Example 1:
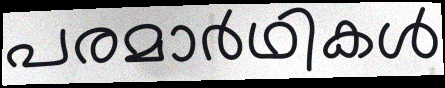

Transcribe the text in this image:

പരമാർഥികൾ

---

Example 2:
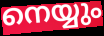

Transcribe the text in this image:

നെയ്യും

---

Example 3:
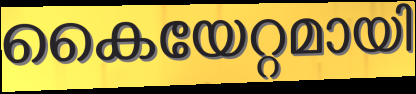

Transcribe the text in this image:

കൈയേറ്റമായി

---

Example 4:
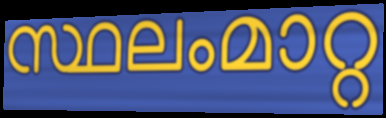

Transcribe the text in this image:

സ്ഥലംമാറ്റ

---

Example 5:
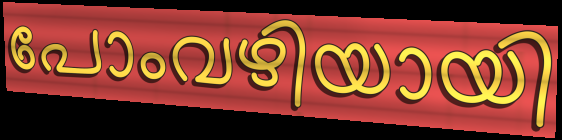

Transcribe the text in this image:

പോംവഴിയായി